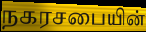
நகரசபையின்